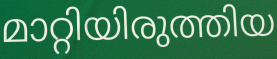
മാറ്റിയിരുത്തിയ